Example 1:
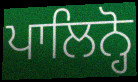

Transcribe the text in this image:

ਪਾਲਿਨ੍ਹੋ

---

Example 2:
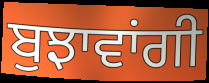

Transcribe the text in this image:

ਬੁਝਾਵਾਂਗੀ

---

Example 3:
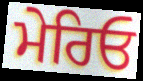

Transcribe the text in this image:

ਮੇਰਿਓ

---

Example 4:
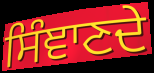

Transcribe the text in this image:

ਸਿੰਞਾਣਦੇ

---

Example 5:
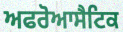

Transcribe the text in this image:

ਅਫਰੋਆਸੈਟਿਕ